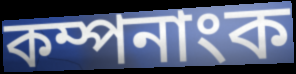
কম্পনাংক